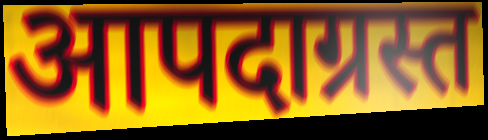
आपदाग्रस्त